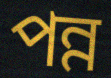
পন্ন